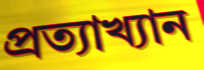
প্রত্যাখ্যান